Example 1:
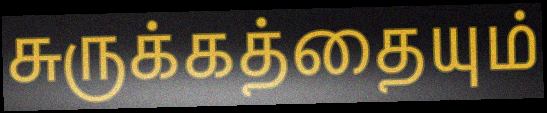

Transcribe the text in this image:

சுருக்கத்தையும்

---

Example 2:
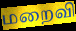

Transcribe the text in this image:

மறைவி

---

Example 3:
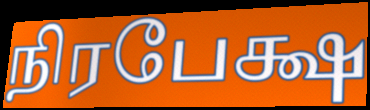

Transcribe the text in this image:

நிரபேக்ஷ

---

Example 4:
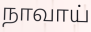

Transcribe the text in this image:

நாவாய்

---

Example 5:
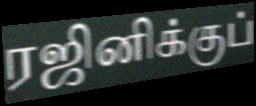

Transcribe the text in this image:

ரஜினிக்குப்